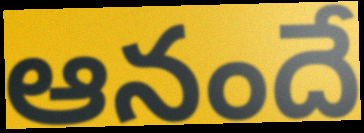
ఆనందే